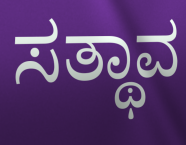
ಸತ್ಥಾವ